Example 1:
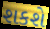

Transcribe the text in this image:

શકશે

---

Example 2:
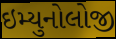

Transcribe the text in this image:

ઇમ્યુનોલોજી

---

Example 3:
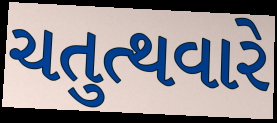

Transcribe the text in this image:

ચતુત્થવારે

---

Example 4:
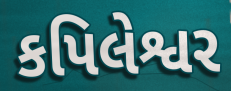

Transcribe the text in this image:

કપિલેશ્વર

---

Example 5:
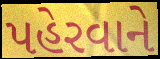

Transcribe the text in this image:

પહેરવાને